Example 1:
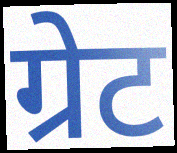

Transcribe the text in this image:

ग्रेट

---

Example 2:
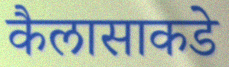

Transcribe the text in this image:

कैलासाकडे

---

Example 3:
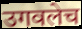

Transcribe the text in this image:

उगवलेच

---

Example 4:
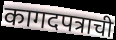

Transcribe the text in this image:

कागदपत्राची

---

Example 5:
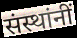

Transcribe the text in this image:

संस्थांनीं